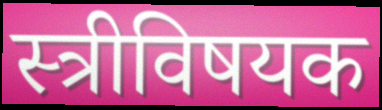
स्त्रीविषयक